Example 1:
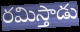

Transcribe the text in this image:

రమిస్తాడు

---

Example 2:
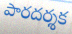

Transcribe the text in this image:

పారదర్శక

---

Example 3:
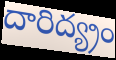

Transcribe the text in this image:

దారిద్య్రం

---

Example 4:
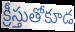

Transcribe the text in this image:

క్రీస్తుతోకూడ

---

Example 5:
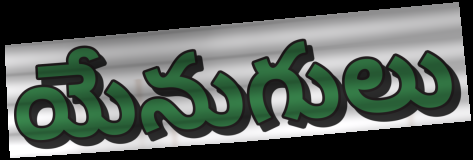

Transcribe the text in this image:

యేనుగులు